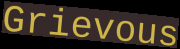
Grievous